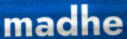
madhe